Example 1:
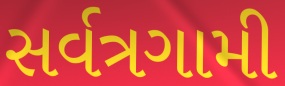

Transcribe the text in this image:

સર્વત્રગામી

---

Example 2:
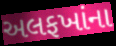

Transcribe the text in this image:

અલફખાંના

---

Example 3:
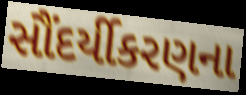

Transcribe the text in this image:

સૌંદર્યીકરણના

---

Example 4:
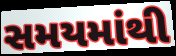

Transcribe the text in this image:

સમયમાંથી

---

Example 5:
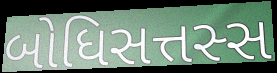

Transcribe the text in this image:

બોધિસત્તસ્સ